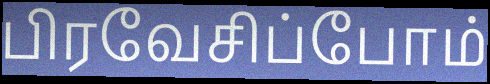
பிரவேசிப்போம்